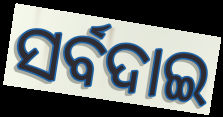
ସର୍ବଦାଇ